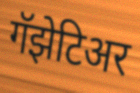
गॅझेटिअर